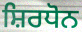
ਸ਼ਿਰਧੋਨ